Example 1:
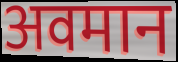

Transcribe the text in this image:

अवमान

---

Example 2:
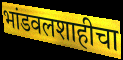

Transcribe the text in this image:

भांडवलशाहीचा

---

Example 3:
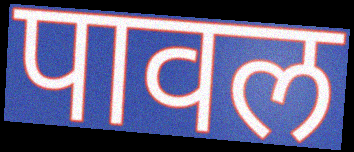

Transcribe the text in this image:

पावल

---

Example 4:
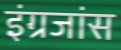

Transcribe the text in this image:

इंग्रजांस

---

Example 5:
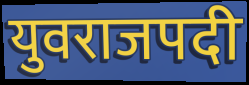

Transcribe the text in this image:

युवराजपदी